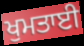
ਖੁਮਤਾਈ